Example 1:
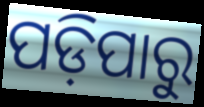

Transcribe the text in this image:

ପଡ଼ିପାରୁ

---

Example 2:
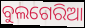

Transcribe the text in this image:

ବୁଲଗେରିଆ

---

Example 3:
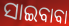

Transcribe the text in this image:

ସାଇବାବା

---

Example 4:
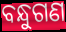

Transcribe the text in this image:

ବନ୍ଧୁଗଣ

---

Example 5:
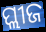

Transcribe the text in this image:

ପ୍ଲୀଜ